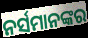
ନର୍ସମାନଙ୍କର